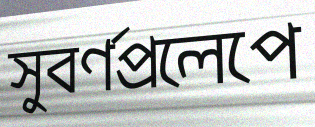
সুবর্ণপ্রলেপে